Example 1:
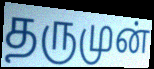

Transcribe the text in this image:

தருமுன்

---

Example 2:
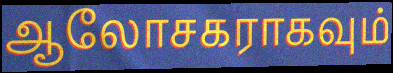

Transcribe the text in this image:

ஆலோசகராகவும்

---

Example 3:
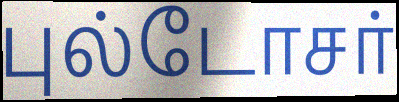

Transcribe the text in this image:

புல்டோசர்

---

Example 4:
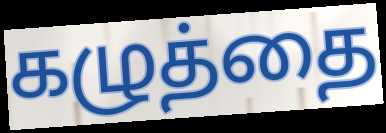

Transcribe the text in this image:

கழுத்தை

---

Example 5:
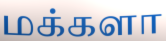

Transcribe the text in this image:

மக்களா